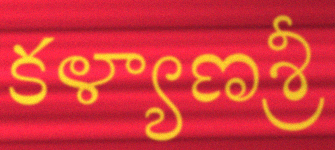
కళ్యాణశ్రీ